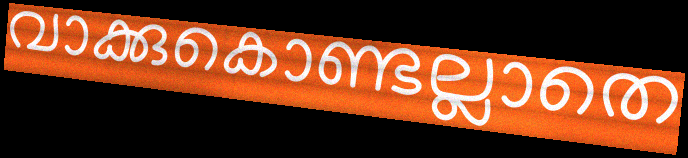
വാക്കുകൊണ്ടല്ലാതെ